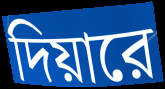
দিয়ারে